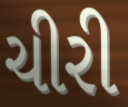
ચીરી